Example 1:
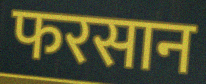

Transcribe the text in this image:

फरसान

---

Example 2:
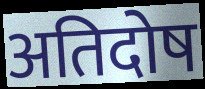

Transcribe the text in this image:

अतिदोष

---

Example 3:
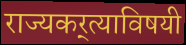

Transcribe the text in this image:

राज्यकर्त्याविषयी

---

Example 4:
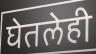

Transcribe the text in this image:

घेतलेही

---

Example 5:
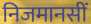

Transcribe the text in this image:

निजमानसीं